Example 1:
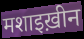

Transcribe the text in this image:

मशाइख़ीन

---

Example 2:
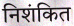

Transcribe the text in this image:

निशंकित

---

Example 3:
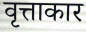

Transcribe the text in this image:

वृत्ताकार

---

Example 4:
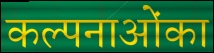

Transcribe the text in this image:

कल्पनाओंका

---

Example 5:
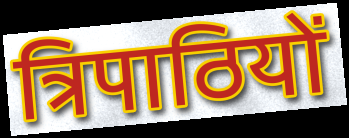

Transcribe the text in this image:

त्रिपाठियों